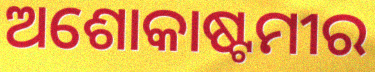
ଅଶୋକାଷ୍ଟମୀର